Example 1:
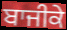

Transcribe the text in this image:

ਬਾਜੀਕੇ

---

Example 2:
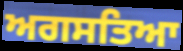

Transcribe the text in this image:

ਅਗਸਤਿਆ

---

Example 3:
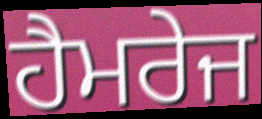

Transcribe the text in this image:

ਹੈਮਰੇਜ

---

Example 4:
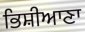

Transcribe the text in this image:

ਭਿਸ਼ੀਆਣਾ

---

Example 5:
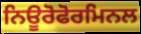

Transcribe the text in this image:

ਨਿਊਰੋਫੋਰਮਿਨਲ